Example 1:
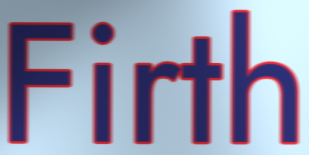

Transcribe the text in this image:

Firth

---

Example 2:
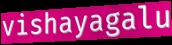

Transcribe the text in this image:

vishayagalu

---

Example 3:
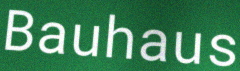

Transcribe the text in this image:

Bauhaus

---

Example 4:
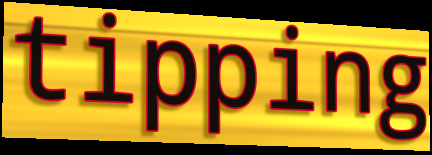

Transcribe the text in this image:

tipping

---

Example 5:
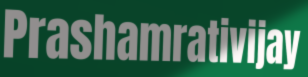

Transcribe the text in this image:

Prashamrativijay